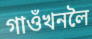
গাওঁখনলৈ